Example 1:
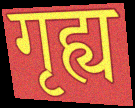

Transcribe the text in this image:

गृह्य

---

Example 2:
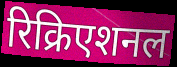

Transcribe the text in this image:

रिक्रिएशनल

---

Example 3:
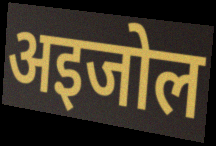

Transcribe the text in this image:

अइजोल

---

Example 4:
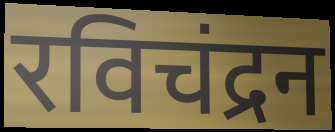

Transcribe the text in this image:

रविचंद्रन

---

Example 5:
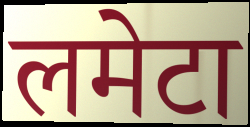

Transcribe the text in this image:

लमेटा